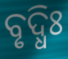
ବୃଦ୍ଧିଃ